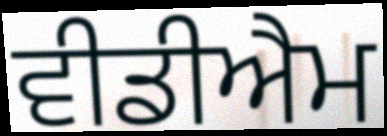
ਵੀਡੀਐਮ